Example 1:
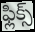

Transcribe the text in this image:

ఫ్లిక్స్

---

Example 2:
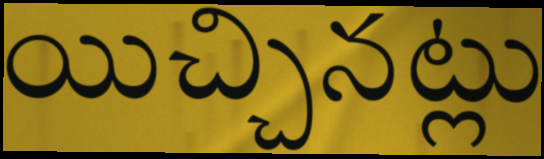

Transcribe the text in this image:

యిచ్చినట్లు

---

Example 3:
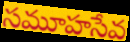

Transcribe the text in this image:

సమూహసేవ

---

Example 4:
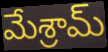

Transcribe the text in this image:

మేశ్రామ్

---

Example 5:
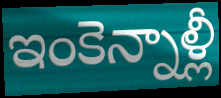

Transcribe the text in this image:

ఇంకెన్నాళ్లీ